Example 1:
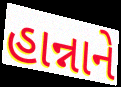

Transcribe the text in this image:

હાન્નાને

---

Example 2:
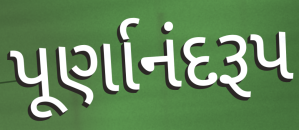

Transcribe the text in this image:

પૂર્ણાનંદરૂપ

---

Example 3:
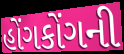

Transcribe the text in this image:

હોંગકોંગની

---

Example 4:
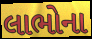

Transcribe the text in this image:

લાભોના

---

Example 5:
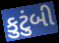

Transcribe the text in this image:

કુટુંબી